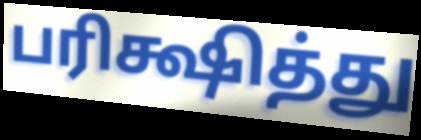
பரிக்ஷித்து